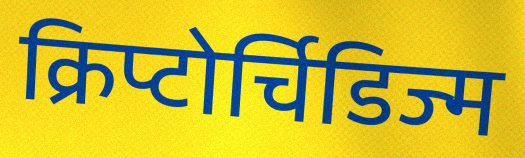
क्रिप्टोर्चिडिज्म